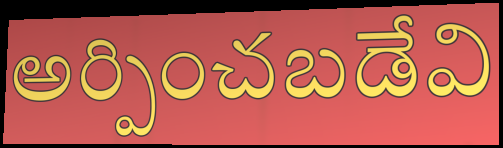
అర్పించబడేవి